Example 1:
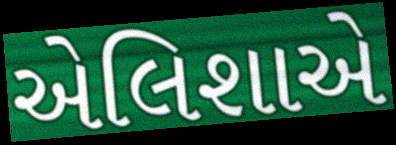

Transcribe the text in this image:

એલિશાએ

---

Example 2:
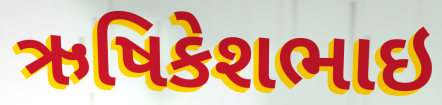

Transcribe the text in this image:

ઋષિકેશભાઇ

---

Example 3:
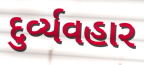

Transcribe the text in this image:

દુર્વ્યવહાર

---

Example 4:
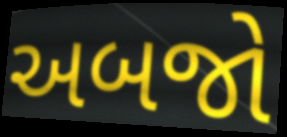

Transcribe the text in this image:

અબજો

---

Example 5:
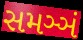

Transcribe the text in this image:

સમઞ્ઞં